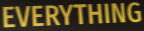
EVERYTHING